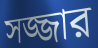
সজ্জার